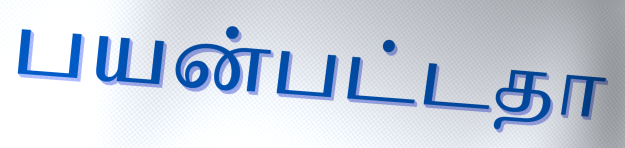
பயன்பட்டதா